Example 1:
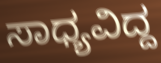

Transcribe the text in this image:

ಸಾಧ್ಯವಿದ್ದ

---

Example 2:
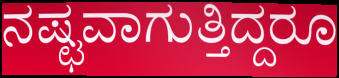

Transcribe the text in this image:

ನಷ್ಟವಾಗುತ್ತಿದ್ದರೂ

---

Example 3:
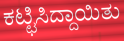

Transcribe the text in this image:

ಕಟ್ಟಿಸಿದ್ದಾಯಿತು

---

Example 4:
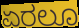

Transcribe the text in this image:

ಏರಲೂ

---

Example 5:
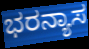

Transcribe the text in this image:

ಭರನ್ಯಾಸ